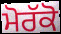
ਮੋਰੱਕੋ